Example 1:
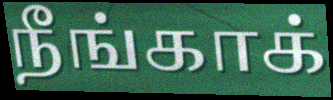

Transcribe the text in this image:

நீங்காக்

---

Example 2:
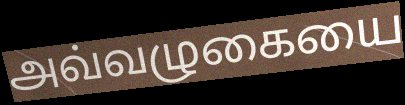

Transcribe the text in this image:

அவ்வழுகையை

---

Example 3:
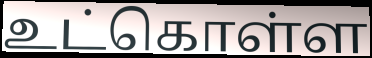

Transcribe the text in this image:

உட்கொள்ள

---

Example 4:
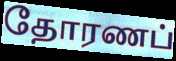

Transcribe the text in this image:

தோரணப்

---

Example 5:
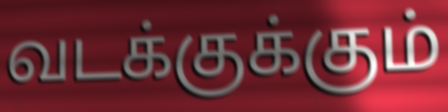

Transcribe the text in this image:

வடக்குக்கும்